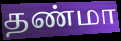
தண்மா